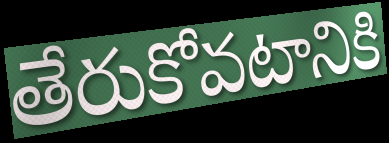
తేరుకోవటానికి